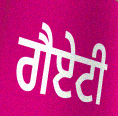
ਗੈਏਟੀ